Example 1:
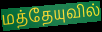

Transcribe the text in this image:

மத்தேயுவில்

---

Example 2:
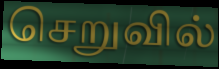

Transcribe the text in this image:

செறுவில்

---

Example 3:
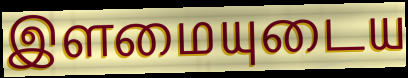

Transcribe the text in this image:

இளமையுடைய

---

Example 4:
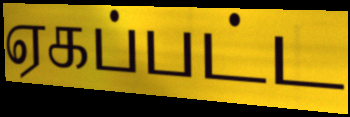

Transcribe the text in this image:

ஏகப்பட்ட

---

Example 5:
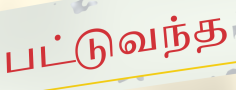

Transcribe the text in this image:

பட்டுவந்த